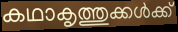
കഥാകൃത്തുക്കൾക്ക്